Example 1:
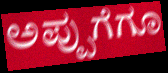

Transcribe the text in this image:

ಅಪ್ಪುಗೆಗೂ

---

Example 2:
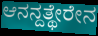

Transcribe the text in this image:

ಆನನ್ದತ್ಥೇರೇನ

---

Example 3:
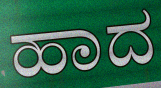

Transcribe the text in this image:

ಹಾದ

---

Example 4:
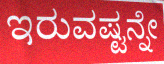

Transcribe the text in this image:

ಇರುವಷ್ಟನ್ನೇ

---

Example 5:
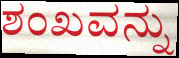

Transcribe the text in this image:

ಶಂಖವನ್ನು